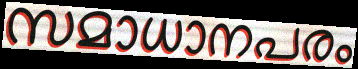
സമാധാനപരം